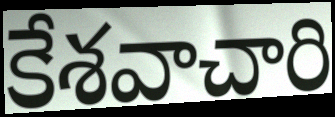
కేశవాచారి